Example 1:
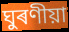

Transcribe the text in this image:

ঘুৰণীয়া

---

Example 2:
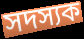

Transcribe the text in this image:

সদস্যক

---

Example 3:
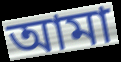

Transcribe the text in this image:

আমা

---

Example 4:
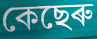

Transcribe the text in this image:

কেছেৰু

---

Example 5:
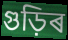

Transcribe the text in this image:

গুড়িৰ